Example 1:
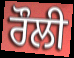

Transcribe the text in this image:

ਰੌਲੀ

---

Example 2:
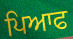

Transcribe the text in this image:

ਪਿਆਫ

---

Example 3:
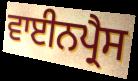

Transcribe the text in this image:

ਵਾਈਨਪ੍ਰੈਸ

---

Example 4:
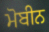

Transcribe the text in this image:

ਮੋਬੀਨ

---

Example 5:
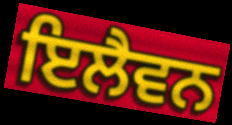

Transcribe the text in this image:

ਇਲੈਵਨ